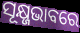
ସୂକ୍ଷ୍ଜଭାବରେ